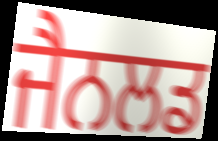
ਜੈਨਲਡ